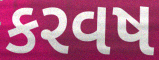
કરવષ